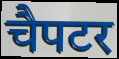
चैपटर